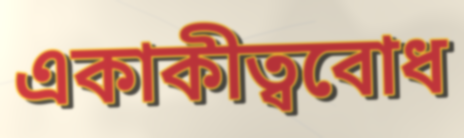
একাকীত্ববোধ